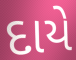
દાયે